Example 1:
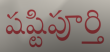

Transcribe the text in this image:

షష్టిపూర్తి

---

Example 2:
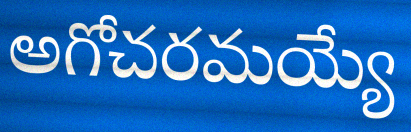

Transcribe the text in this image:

అగోచరమయ్యే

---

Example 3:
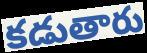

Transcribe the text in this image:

కడుతారు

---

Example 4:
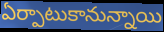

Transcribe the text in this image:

ఏర్పాటుకానున్నాయి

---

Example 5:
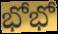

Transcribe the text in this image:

భోభో